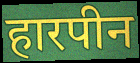
हारपीन